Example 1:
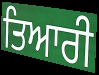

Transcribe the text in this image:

ਤਿਆਰੀ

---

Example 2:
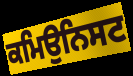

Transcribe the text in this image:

ਕਮਿਉਨਿਸਟ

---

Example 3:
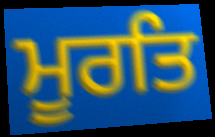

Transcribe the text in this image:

ਮੂਰਤਿ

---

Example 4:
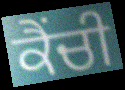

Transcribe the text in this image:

ਕੈਂਚੀ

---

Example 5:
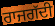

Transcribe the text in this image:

ਰਾਜਗੱਦੀ